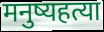
मनुष्यहत्या